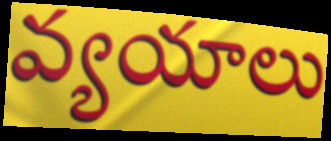
వ్యయాలు